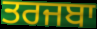
ਤਰਜਬਾ